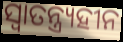
ସ୍ଵାତନ୍ତ୍ର୍ୟହୀନ